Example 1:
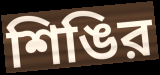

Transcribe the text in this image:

শিঙির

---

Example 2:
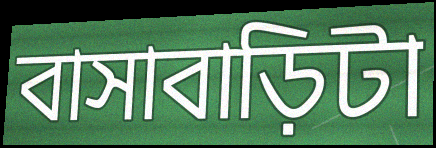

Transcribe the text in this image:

বাসাবাড়িটা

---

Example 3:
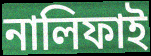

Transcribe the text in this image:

নালিফাই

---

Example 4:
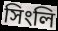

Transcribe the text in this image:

সিংলি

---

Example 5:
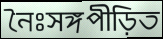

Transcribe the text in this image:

নৈঃসঙ্গপীড়িত